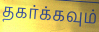
தகர்க்கவும்